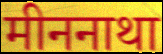
मीननाथा